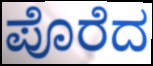
ಪೊರೆದ